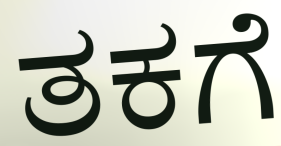
ತಕಗೆ